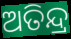
ଅତିନ୍ଦ୍ର